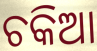
ଚକିଆ